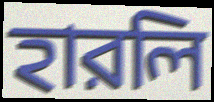
হারলি